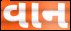
વાન